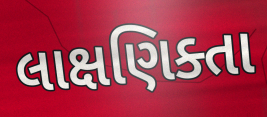
લાક્ષણિક્તા